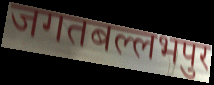
जगतबल्लभपुर